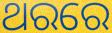
ଥରରେ